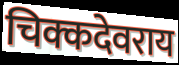
चिक्कदेवराय